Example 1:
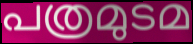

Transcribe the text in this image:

പത്രമുടമ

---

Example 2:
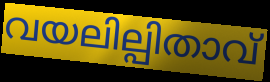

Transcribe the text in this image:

വയലില്പിതാവ്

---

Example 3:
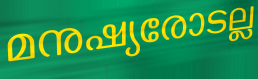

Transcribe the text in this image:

മനുഷ്യരോടല്ല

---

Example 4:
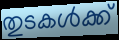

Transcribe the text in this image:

തുടകൾക്ക്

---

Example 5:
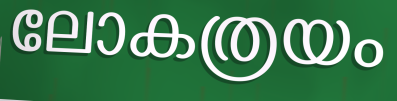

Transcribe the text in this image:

ലോകത്രയം